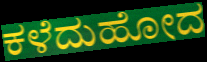
ಕಳೆದುಹೋದ